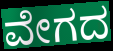
ವೇಗದ